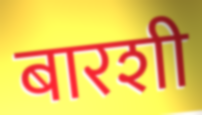
बारशी